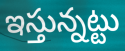
ఇస్తున్నట్టు